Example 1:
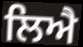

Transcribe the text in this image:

ਲਿਐ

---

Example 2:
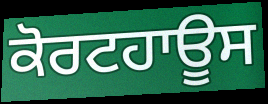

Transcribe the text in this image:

ਕੋਰਟਹਾਊਸ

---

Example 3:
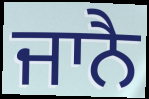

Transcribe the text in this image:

ਜਾਨੈ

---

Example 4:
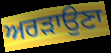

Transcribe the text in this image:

ਅਰੜਾਉਣਾ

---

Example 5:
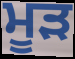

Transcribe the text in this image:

ਮੂੜ